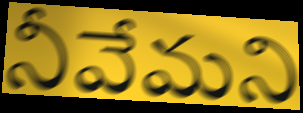
నీవేమని